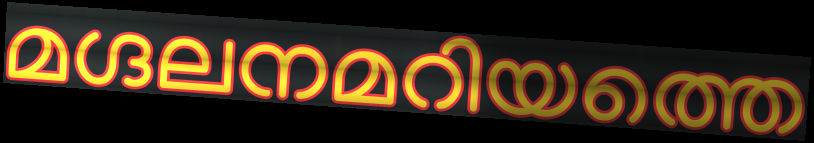
മഗ്ദലനമറിയത്തെ